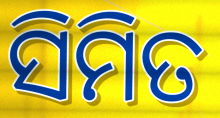
ସିମିତ